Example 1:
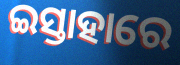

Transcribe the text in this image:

ଇସ୍ତାହାରେ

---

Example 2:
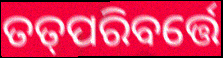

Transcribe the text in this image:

ତତ୍‌ପରିବର୍ତ୍ତେ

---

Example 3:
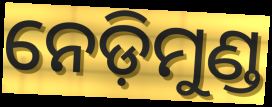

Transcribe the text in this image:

ନେଡ଼ିମୁଣ୍ଡ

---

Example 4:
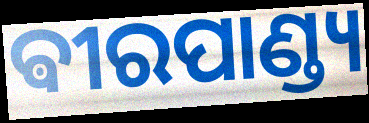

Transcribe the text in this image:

ଵୀରପାଣ୍ଡ୍ୟ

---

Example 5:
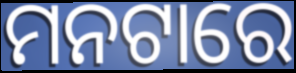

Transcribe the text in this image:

ମନଟାରେ